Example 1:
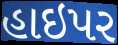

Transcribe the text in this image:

હાઇપર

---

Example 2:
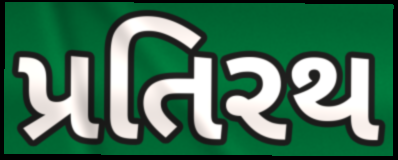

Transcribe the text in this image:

પ્રતિરથ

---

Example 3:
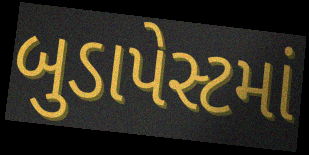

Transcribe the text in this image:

બુડાપેસ્ટમાં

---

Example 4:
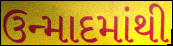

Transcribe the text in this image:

ઉન્માદમાંથી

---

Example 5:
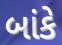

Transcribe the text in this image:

બાંકે